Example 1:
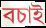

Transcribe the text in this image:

বচাই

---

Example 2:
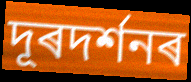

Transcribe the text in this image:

দূৰদৰ্শনৰ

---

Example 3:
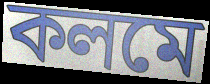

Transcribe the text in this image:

কলমে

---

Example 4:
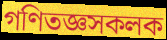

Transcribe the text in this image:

গণিতজ্ঞসকলক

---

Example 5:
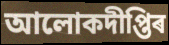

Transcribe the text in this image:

আলোকদীপ্তিৰ